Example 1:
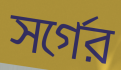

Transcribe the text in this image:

সর্গের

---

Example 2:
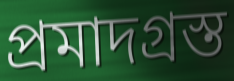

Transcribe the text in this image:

প্রমাদগ্রস্ত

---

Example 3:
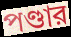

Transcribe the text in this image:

পণ্ডার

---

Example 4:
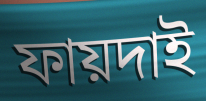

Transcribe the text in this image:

ফায়দাই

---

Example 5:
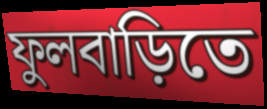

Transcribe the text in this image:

ফুলবাড়িতে